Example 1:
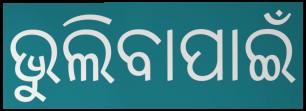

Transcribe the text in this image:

ଭୁଲିବାପାଇଁ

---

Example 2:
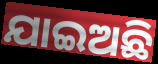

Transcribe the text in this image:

ଯାଇଅଛି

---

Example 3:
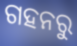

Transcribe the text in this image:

ଗହନରୁ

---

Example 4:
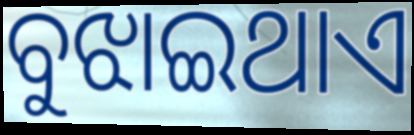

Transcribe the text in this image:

ବୁଝାଇଥାଏ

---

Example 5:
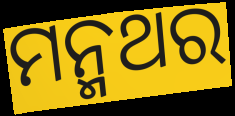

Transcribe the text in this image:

ମନ୍ମଥର